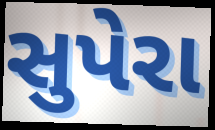
સુપેરા